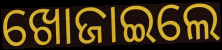
ଖୋଜାଇଲେ